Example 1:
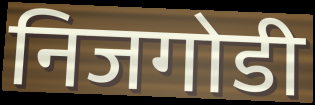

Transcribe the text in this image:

निजगोडी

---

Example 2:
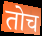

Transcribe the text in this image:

तोच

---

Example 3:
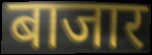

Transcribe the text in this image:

बाजार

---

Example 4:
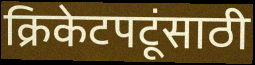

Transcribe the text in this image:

क्रिकेटपटूंसाठी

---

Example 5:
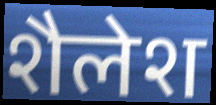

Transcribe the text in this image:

शैलेश